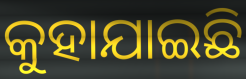
କୁହାଯାଇଛି